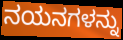
ನಯನಗಳನ್ನು